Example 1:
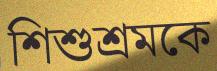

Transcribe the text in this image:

শিশুশ্রমকে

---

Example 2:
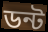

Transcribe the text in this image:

ডন্ট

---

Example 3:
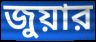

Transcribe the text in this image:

জুয়ার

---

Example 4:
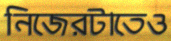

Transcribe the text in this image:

নিজেরটাতেও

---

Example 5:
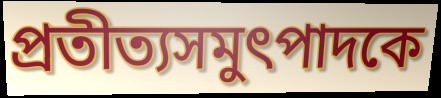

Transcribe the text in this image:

প্রতীত্যসমুৎপাদকে